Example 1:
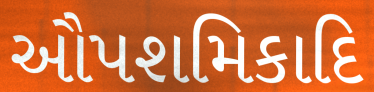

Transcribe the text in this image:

ઔપશમિકાદિ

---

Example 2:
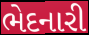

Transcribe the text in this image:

ભેદનારી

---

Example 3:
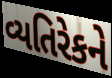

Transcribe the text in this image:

વ્યતિરેકને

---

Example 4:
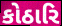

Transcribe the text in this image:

કોઠારિ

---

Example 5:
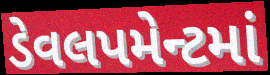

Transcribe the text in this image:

ડેવલપમેન્ટમાં